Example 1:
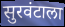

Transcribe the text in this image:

सुरवंटाला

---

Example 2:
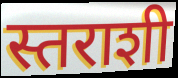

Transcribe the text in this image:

स्तराशी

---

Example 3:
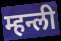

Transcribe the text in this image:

म्हन्ली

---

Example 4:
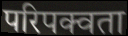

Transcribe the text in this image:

परिपक्वता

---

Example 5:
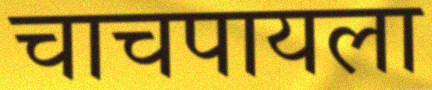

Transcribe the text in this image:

चाचपायला